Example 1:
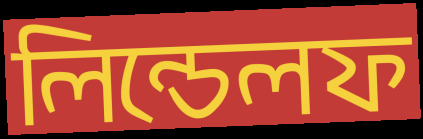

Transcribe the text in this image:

লিন্ডেলফ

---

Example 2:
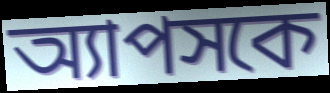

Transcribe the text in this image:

অ্যাপসকে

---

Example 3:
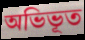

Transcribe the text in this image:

অভিভূত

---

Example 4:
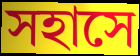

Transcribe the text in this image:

সহাসে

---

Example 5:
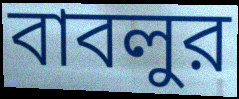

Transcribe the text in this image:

বাবলুর